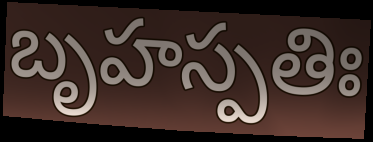
బృహస్పతిః